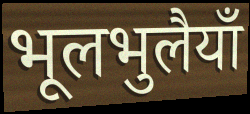
भूलभुलैयाँ